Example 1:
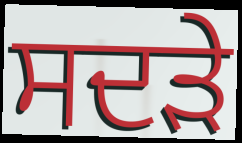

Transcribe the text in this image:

ਸਦੜੇ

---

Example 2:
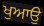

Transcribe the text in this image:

ਖੁਆਉ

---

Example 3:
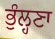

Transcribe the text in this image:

ਭੁੰਲ੍ਹਣਾ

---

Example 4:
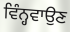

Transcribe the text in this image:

ਵਿੰਨ੍ਹਵਾਉਣ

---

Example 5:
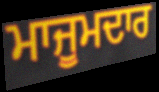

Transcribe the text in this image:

ਮਾਜੂਮਦਾਰ